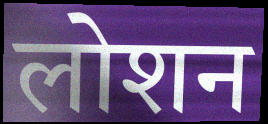
लोशन